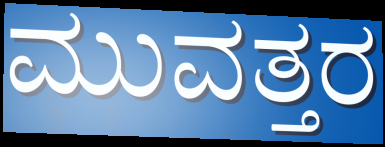
ಮುವತ್ತರ